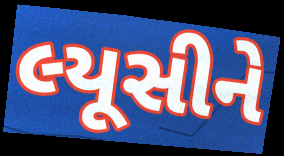
લ્યૂસીને